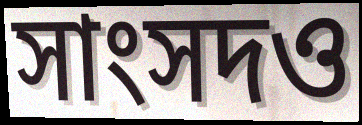
সাংসদও